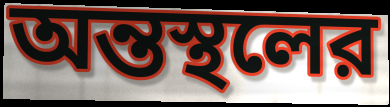
অন্তস্থলের